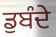
ਡੁਬੰਦੇ